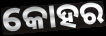
କୋହର